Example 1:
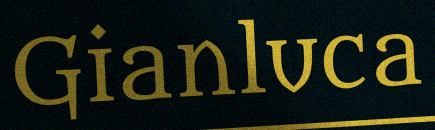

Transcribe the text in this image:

Gianluca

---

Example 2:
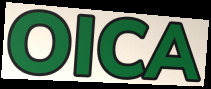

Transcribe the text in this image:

OICA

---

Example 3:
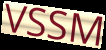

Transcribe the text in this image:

VSSM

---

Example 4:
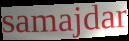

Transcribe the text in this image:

samajdar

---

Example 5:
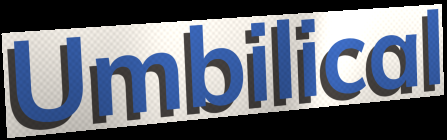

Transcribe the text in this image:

Umbilical